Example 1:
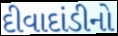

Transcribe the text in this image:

દીવાદાંડીનો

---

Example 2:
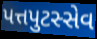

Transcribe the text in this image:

પત્તપુટસ્સેવ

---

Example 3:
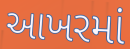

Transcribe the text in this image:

આખરમાં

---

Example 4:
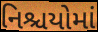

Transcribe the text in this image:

નિશ્ચયોમાં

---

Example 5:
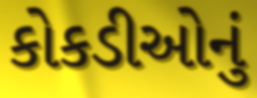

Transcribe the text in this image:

કોકડીઓનું